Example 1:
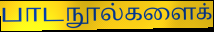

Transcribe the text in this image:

பாடநூல்களைக்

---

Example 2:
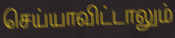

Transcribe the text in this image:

செய்யாவிட்டாலும்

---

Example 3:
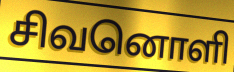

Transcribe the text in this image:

சிவனொளி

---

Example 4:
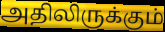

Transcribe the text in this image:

அதிலிருக்கும்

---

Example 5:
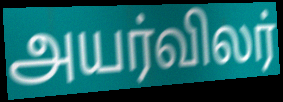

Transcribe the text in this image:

அயர்விலர்